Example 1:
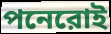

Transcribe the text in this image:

পনেরোই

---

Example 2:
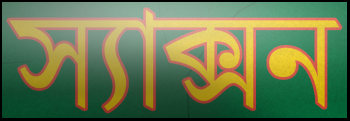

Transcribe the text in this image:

স্যাক্সন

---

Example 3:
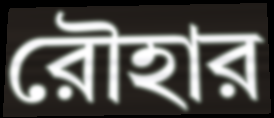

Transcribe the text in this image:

রৌহার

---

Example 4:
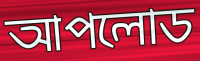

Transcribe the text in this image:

আপলোড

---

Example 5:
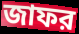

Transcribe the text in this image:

জাফর